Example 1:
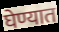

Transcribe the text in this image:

घेण्यात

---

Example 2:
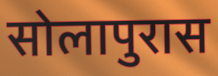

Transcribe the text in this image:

सोलापुरास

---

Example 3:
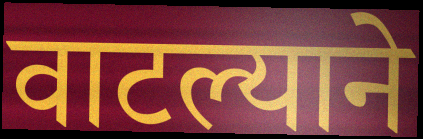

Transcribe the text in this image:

वाटल्याने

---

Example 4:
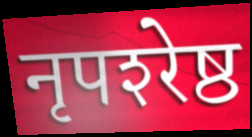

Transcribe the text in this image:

नृपश्रेष्ठ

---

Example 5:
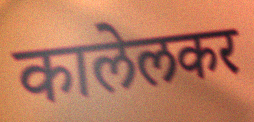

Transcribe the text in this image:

कालेलकर